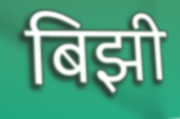
बिझी